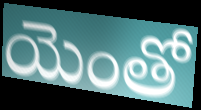
యెంతో